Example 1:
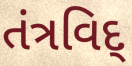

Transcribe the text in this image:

તંત્રવિદ્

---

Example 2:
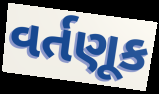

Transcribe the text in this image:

વર્તણૂક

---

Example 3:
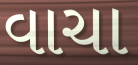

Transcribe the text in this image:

વાચા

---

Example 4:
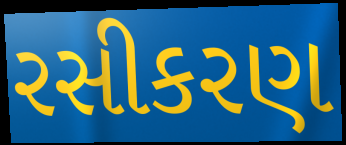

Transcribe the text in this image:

રસીકરણ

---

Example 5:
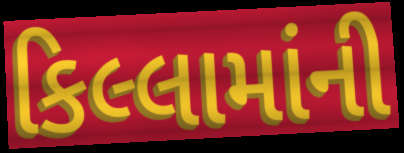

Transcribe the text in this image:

કિલ્લામાંની